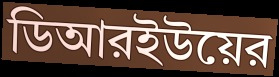
ডিআরইউয়ের